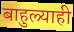
बाहुल्याही